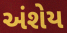
અંશેય